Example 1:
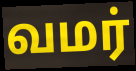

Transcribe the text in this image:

வமர்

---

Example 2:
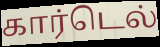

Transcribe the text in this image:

கார்டெல்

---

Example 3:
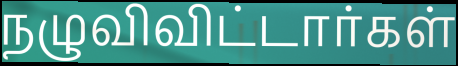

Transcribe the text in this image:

நழுவிவிட்டார்கள்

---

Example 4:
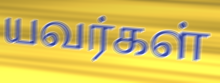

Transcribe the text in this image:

யவர்கள்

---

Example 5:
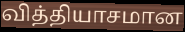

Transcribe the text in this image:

வித்தியாசமான